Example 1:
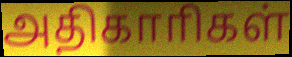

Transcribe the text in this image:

அதிகாரிகள்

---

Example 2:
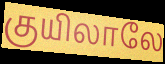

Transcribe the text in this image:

குயிலாலே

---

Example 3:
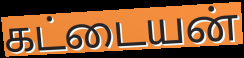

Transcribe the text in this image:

கட்டையன்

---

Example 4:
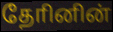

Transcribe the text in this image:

தேரினின்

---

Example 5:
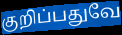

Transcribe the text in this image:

குறிப்பதுவே